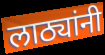
लाठ्यांनी